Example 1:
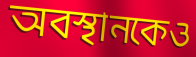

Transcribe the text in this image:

অবস্থানকেও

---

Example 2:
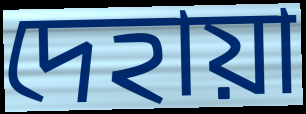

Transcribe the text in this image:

দেহায়া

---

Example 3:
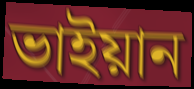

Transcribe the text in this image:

ভাইয়ান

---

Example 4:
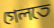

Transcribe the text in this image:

গেলতে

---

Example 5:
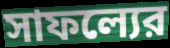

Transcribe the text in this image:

সাফল্যের